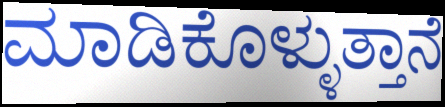
ಮಾಡಿಕೊಳ್ಳುತ್ತಾನೆ